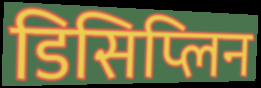
डिसिप्लिन